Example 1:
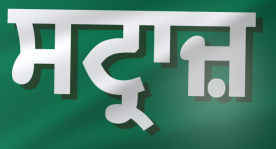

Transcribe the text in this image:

ਸਟ੍ਰਾਜ਼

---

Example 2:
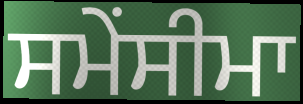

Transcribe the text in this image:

ਸਮੇਂਸੀਮਾ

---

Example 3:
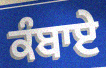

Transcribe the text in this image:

ਕੰਬਾਏ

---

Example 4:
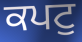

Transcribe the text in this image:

ਕਪਟੁ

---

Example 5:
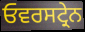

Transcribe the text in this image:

ਓਵਰਸਟ੍ਰੇਨ